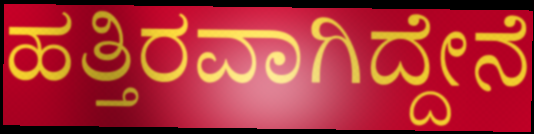
ಹತ್ತಿರವಾಗಿದ್ದೇನೆ